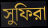
সুফিরা